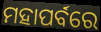
ମହାପର୍ବରେ